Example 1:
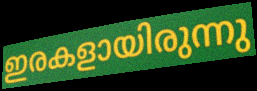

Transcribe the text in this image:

ഇരകളായിരുന്നു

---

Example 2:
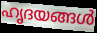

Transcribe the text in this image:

ഹൃദയങ്ങൾ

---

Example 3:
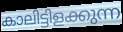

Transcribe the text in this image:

കാലിട്ടിളക്കുന്ന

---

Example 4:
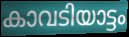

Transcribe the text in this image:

കാവടിയാട്ടം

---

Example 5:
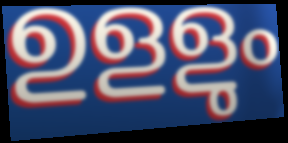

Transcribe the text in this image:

ഉളളും